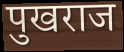
पुखराज